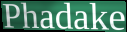
Phadake